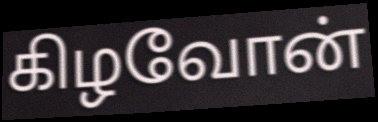
கிழவோன்